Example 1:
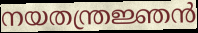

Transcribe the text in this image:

നയതന്ത്രജ്ഞൻ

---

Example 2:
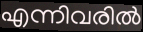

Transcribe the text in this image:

എന്നിവരിൽ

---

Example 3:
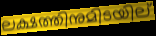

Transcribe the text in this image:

ലക്ഷത്തിനുമിടയില്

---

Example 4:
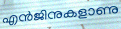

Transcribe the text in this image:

എൻജിനുകളാണു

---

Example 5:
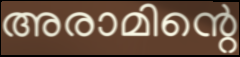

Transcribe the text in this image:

അരാമിന്റെ